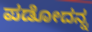
ಪಡೋದನ್ನ